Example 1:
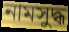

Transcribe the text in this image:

নামসুদ্ধ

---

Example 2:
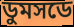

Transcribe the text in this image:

ডুমসডে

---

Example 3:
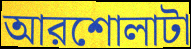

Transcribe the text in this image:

আরশোলাটা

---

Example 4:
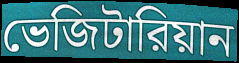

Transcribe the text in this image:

ভেজিটারিয়ান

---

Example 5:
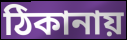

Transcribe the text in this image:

ঠিকানায়